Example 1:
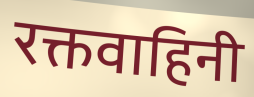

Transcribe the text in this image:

रक्तवाहिनी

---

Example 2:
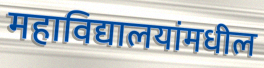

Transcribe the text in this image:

महाविद्यालयांमधील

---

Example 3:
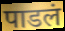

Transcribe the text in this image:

पाडलं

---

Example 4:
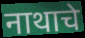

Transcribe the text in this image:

नाथाचे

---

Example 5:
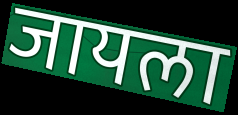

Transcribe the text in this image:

जायला